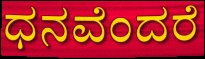
ಧನವೆಂದರೆ